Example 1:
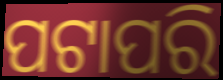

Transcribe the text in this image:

ପଟାପରି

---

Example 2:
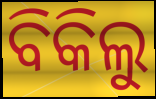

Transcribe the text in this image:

ବିକିଲୁ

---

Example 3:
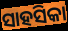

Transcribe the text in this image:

ସାହସିକା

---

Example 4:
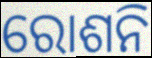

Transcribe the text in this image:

ରୋଶନି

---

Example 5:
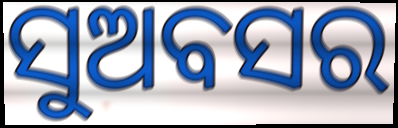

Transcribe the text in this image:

ସୁଅବସର